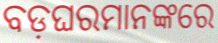
ବଡ଼ଘରମାନଙ୍କରେ